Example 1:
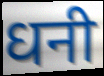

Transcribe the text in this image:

धनी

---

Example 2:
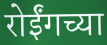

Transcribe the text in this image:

रोईंगच्या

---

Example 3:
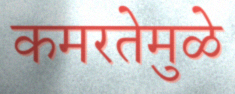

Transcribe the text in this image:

कमरतेमुळे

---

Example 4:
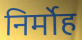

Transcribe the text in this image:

निर्मोह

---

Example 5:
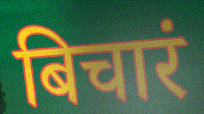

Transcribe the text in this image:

बिचारं